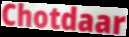
Chotdaar